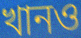
খানও